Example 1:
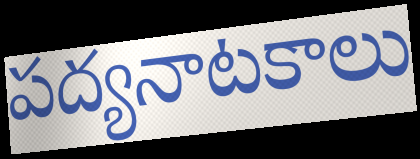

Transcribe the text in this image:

పద్యనాటకాలు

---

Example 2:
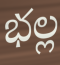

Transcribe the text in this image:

భల్ల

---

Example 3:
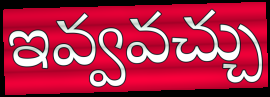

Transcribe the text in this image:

ఇవ్వవచ్చు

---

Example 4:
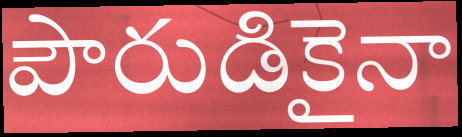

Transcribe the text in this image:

పౌరుడికైనా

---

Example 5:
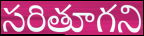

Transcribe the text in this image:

సరితూగని